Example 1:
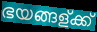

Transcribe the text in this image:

ഭയങ്ങള്ക്ക്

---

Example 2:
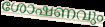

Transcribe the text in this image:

ശോഷണവും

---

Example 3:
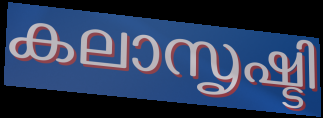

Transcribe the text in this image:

കലാസൃഷ്ടി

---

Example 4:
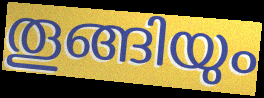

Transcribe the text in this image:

തൂങ്ങിയും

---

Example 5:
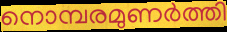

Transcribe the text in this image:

നൊമ്പരമുണർത്തി